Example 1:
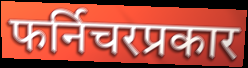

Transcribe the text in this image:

फर्निचरप्रकार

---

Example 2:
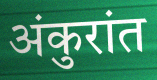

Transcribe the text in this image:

अंकुरांत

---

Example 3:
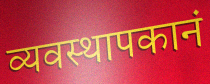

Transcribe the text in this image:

व्यवस्थापकानं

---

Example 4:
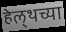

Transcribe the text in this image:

हेल्थच्या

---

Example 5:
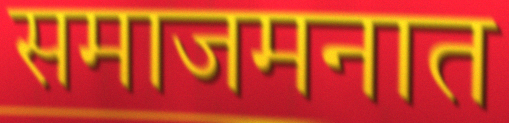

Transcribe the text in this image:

समाजमनात